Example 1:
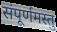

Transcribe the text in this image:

संपूर्णमस्तु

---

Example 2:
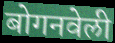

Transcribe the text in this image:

बोगनवेली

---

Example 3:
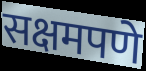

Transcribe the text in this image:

सक्षमपणे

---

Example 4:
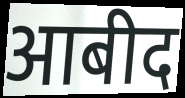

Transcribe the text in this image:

आबीद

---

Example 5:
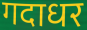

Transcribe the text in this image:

गदाधर